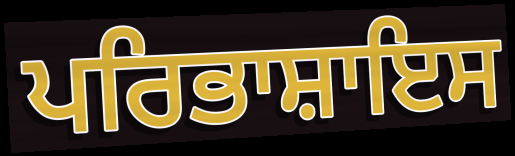
ਪਰਿਭਾਸ਼ਾਇਸ